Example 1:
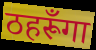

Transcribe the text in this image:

ठहरूँगा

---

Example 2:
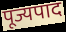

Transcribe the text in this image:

पूज्यपाद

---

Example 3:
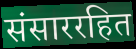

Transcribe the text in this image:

संसाररहित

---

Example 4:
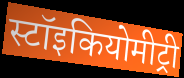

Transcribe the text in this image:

स्टॉइकियोमीट्री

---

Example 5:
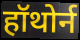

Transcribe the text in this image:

हॉथोर्न